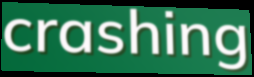
crashing